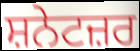
ਸ਼ਨੇਟਜ਼ਰ